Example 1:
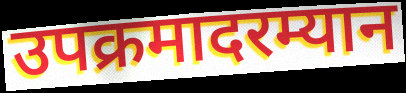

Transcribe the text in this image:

उपक्रमादरम्यान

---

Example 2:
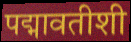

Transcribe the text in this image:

पद्मावतीशी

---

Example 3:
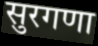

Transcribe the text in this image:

सुरगणा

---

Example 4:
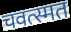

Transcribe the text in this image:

चवत्स्मत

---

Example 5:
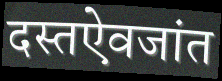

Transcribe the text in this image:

दस्तऐवजांत